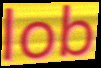
Iob